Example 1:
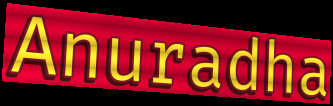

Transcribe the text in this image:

Anuradha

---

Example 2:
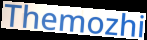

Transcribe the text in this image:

Themozhi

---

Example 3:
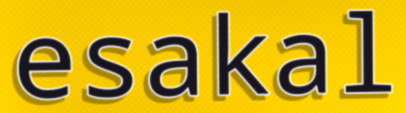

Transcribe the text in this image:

esakal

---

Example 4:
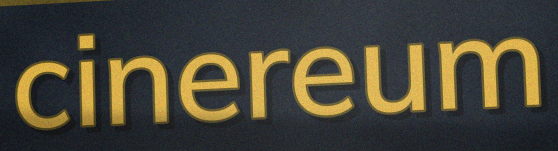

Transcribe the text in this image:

cinereum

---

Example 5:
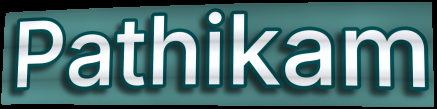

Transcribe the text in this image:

Pathikam